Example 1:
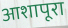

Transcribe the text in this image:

आशापूरा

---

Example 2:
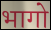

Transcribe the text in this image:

भागो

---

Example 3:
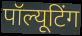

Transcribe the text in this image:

पॉल्यूटिंग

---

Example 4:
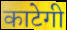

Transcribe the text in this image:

काटेगी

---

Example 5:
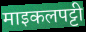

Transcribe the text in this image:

माइकलपट्टी